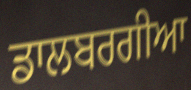
ਡਾਲਬਰਗੀਆ